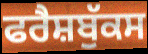
ਫਰੈਸ਼ਬੁੱਕਸ